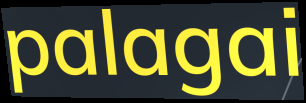
palagai